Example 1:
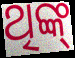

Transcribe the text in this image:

ଥିଙ୍କ୍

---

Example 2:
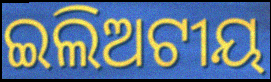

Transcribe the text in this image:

ଇଲିଅଟୀୟ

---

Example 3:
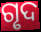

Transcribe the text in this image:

ଗୃଦ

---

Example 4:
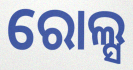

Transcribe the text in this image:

ରୋଲ୍ସ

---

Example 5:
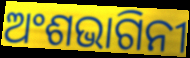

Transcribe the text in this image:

ଅଂଶଭାଗିନୀ